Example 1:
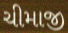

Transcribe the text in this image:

ચીમાજી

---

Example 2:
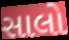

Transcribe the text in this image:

સાલો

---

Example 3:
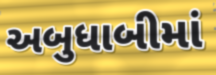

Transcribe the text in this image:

અબુધાબીમાં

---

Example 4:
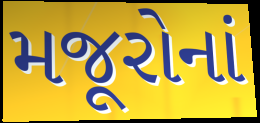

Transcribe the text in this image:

મજૂરોનાં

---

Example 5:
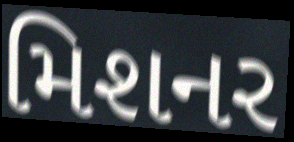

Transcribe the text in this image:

મિશનર